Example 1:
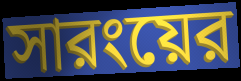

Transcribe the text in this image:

সারংয়ের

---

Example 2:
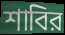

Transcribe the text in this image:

শাবির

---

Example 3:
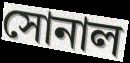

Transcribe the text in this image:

সোনাল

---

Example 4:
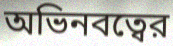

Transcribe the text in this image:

অভিনবত্বের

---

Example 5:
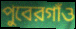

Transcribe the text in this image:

পুবেরগাঁও